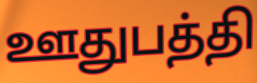
ஊதுபத்தி